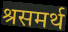
श्रसमर्थ